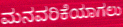
ಮನವರಿಕೆಯಾಗಲು